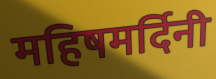
महिषमर्दिनी